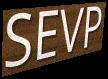
SEVP